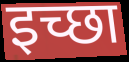
इच्‍छा